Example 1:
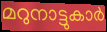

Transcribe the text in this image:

മറുനാട്ടുകാർ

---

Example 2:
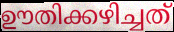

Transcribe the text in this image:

ഊതിക്കഴിച്ചത്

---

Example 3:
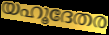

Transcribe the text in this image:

യഹൂദേതര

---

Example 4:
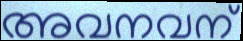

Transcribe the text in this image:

അവനവന്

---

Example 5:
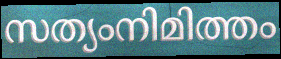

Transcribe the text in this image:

സത്യംനിമിത്തം